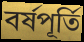
বর্ষপূর্তি